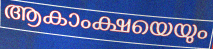
ആകാംക്ഷയെയും